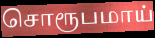
சொரூபமாய்